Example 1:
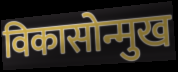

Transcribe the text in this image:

विकासोन्मुख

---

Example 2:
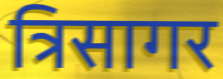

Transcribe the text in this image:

त्रिसागर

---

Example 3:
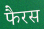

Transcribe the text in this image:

फैरस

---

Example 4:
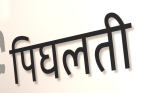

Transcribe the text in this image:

पिघलती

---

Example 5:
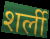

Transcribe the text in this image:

शर्ली